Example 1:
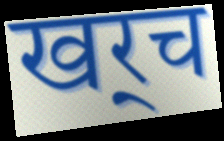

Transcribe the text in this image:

खर्च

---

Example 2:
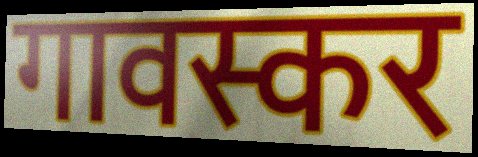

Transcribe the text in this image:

गावस्कर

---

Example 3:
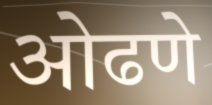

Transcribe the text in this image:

ओढणे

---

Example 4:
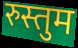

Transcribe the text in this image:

रुस्तुम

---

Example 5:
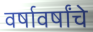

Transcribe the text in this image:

वर्षावर्षांचे